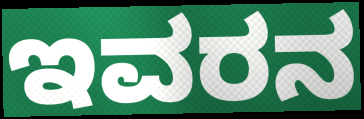
ಇವರನ